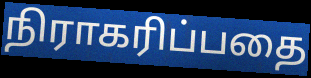
நிராகரிப்பதை